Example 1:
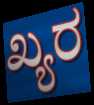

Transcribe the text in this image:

ಖ್ಯರ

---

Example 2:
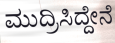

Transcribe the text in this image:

ಮುದ್ರಿಸಿದ್ದೇನೆ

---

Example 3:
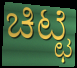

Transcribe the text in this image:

ಚಿಟ್ಟೆ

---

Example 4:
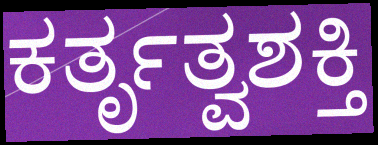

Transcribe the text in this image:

ಕರ್ತೃತ್ವಶಕ್ತಿ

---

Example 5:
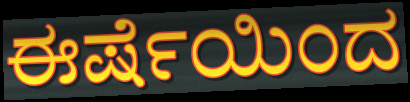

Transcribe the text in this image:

ಈರ್ಷೆಯಿಂದ